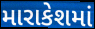
મારાકેશમાં